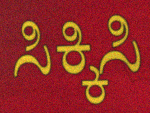
ಸಿಕ್ಕಿಸಿ